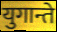
युगान्ते